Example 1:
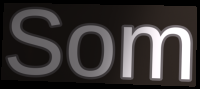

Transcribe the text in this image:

Som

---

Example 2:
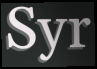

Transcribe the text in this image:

Syr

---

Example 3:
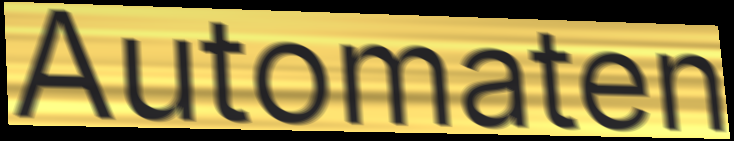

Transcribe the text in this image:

Automaten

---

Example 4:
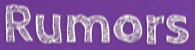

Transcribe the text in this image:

Rumors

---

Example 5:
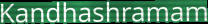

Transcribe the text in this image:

Kandhashramam